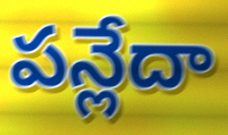
పన్లేదా